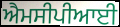
ਐਮਸੀਪੀਆਈ